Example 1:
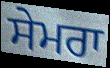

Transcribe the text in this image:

ਸੇਮਰਾ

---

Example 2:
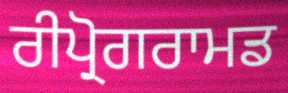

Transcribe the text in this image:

ਰੀਪ੍ਰੋਗਰਾਮਡ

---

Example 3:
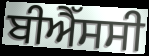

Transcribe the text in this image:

ਬੀਐੱਸਸੀ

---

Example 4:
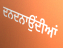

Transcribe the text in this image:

ਦਨਦਨਾਉਂਦੀਆਂ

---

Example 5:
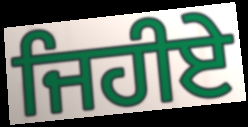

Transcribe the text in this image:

ਜਿਹੀਏ